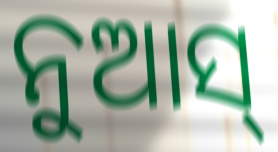
ନୁଆସ୍